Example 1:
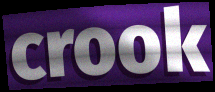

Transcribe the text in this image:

crook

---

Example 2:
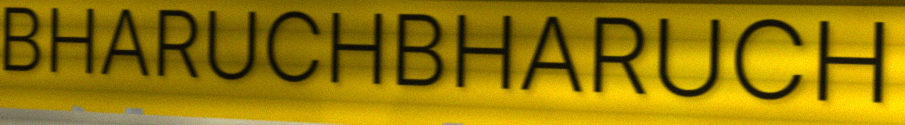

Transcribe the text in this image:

BHARUCHBHARUCH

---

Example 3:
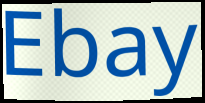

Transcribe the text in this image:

Ebay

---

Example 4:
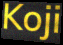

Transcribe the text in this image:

Koji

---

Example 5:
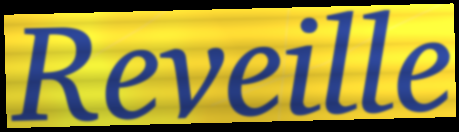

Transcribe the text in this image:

Reveille